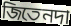
জিতেনদা